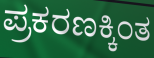
ಪ್ರಕರಣಕ್ಕಿಂತ